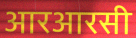
आरआरसी